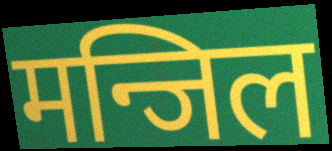
मन्जिल